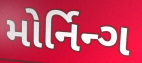
મોર્નિન્ગ